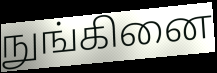
நுங்கினை